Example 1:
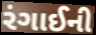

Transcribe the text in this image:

રંગાઈની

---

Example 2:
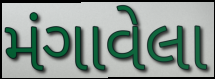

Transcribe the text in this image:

મંગાવેલા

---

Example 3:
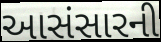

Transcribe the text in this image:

આસંસારની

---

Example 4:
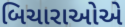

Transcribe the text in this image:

બિચારાઓએ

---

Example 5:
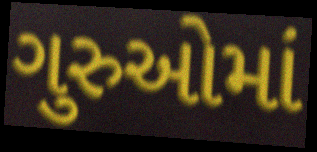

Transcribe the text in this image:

ગુરુઓમાં